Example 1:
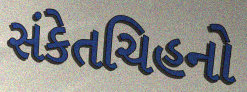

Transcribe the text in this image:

સંકેતચિહનો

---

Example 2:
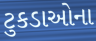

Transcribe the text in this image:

ટુકડાઓના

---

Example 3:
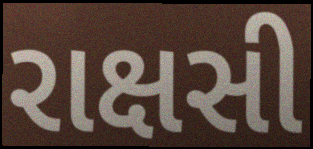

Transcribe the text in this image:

રાક્ષસી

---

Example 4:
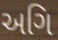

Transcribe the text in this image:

અગિ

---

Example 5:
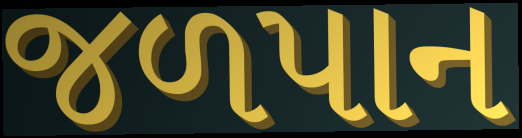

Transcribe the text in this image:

જળપાન